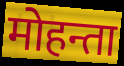
मोहन्ता